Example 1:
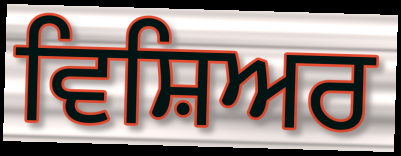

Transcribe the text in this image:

ਵਿਸ਼ਿਅਰ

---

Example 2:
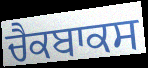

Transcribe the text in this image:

ਚੈਕਬਾਕਸ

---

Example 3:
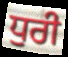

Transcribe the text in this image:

ਧੁਰੀ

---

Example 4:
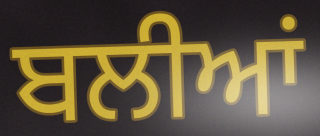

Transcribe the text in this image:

ਬਲੀਆਂ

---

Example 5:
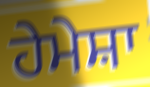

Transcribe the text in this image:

ਹੇਮੇਸ਼ਾ